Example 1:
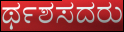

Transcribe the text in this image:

ರ್ಥಶಸದರು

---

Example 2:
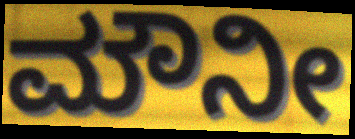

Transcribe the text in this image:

ಮೌನೀ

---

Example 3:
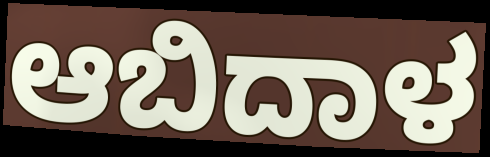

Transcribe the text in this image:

ಆಬಿದಾಳ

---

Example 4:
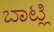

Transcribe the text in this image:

ಬಾಟ್ಲಿ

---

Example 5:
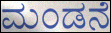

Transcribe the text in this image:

ಮಂಡನೆ